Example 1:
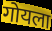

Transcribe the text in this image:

गोयला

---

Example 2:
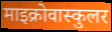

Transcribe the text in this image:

माइक्रोवास्कुलर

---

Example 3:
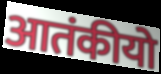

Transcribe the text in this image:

आतंकीयो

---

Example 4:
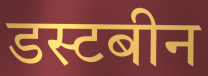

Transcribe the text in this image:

डस्टबीन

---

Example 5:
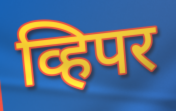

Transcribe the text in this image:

व्हिपर